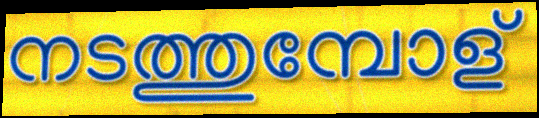
നടത്തുമ്പോള്